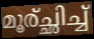
മൂര്ച്ഛിച്ച്